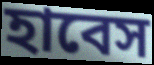
হাবেস